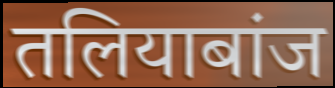
तलियाबांज